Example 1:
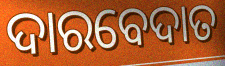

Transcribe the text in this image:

ଦାରବେଦାତ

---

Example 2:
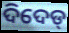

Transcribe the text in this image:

ଦିଦେଡ୍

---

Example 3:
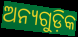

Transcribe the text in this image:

ଅନ୍ୟଗୁଡ଼ିକ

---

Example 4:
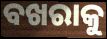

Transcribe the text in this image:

ବଖରାକୁ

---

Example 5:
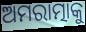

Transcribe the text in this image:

ଅମରାତ୍ମାକୁ